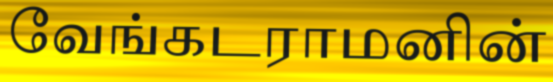
வேங்கடராமனின்